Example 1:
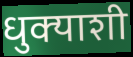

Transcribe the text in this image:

धुक्याशी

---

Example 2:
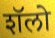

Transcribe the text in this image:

शॅलो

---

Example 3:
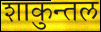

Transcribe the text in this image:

शाकुन्तल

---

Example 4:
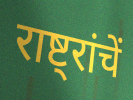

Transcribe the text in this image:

राष्ट्रांचें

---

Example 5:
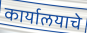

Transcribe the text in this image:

कार्यालयाचे